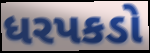
ધરપકડો